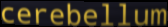
cerebellum